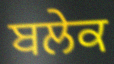
ਬਲੇਕ